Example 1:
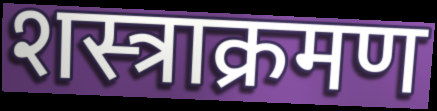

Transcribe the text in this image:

शस्त्राक्रमण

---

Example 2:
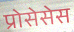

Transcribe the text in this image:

प्रोसेसेस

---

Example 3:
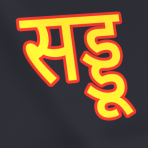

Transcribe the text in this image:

सड्डू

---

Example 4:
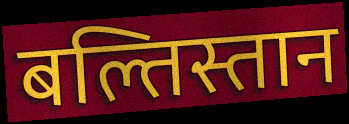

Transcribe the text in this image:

बल्तिस्तान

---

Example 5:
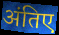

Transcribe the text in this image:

अंतिए